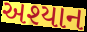
અશ્યાન